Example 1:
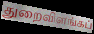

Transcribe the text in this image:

துறைவிளங்கப்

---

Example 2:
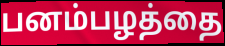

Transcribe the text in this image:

பனம்பழத்தை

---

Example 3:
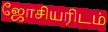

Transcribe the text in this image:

ஜோசியரிடம்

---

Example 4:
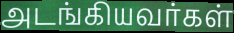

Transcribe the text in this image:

அடங்கியவர்கள்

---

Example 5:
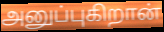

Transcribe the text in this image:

அனுப்புகிறான்